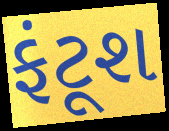
ફંટૂશ